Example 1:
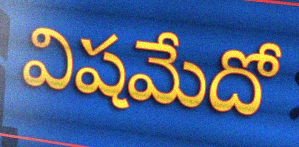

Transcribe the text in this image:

విషమేదో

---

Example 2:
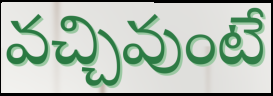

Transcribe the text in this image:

వచ్చివుంటే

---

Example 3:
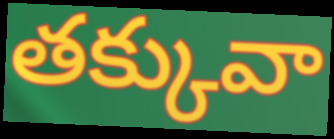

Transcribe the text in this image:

తక్కువా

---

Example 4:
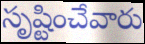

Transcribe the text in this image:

సృష్టించేవారు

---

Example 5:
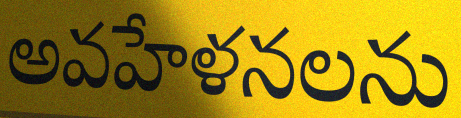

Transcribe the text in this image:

అవహేళనలను